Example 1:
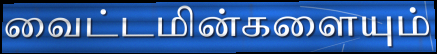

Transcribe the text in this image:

வைட்டமின்களையும்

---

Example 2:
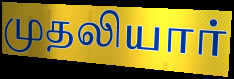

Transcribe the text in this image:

முதலியார்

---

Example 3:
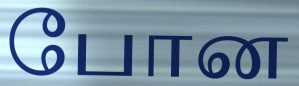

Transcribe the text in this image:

போன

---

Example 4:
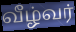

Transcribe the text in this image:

வீழ்வர்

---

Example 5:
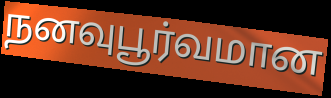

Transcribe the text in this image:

நனவுபூர்வமான